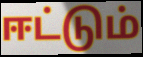
ஈட்டும்